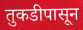
तुकडीपासून